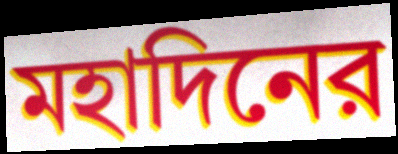
মহাদিনের